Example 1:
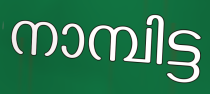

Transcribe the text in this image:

നാമ്പിട്ട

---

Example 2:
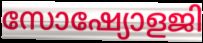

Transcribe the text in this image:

സോഷ്യോളജി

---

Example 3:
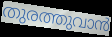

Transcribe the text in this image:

തുരത്തുവാൻ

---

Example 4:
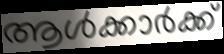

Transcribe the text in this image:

ആൾക്കാർക്ക്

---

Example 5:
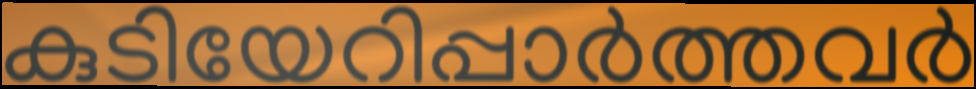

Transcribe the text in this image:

കുടിയേറിപ്പാർത്തവർ